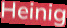
Heinig